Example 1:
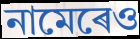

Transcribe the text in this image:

নামেৰেও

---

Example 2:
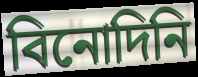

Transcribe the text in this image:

বিনোদিনি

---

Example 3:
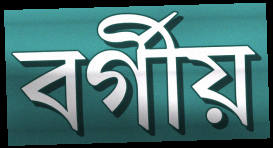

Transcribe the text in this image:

বৰ্গীয়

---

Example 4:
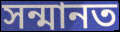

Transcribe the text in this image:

সন্মানত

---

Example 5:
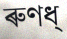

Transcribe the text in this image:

ৰুণধ্